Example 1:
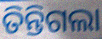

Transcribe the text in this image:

ତିନ୍ତିଗଲା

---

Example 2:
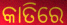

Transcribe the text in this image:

କାତିରେ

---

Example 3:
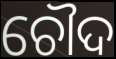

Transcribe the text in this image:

ଚୌଦ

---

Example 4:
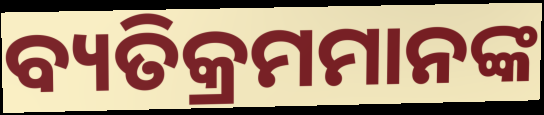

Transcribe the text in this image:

ବ୍ୟତିକ୍ରମମାନଙ୍କ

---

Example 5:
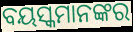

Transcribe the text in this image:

ବୟସ୍କମାନଙ୍କର